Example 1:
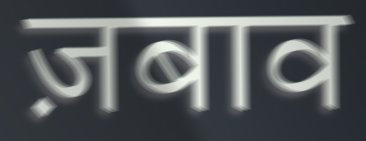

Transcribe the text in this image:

ज़बाव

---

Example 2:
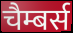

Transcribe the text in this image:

चैम्‍बर्स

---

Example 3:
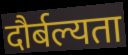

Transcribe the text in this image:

दौर्बल्यता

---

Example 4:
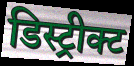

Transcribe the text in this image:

डिस्ट्रीक्ट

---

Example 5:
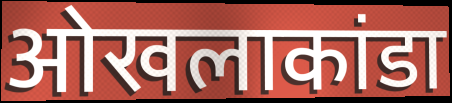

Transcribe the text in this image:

ओखलाकांडा